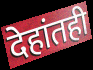
देहांतही